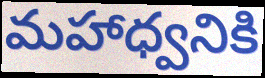
మహాధ్వనికి